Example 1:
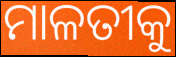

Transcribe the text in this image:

ମାଳତୀକୁ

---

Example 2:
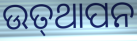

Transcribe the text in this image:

ଉତ୍‍ଥାପନ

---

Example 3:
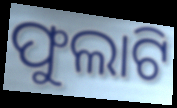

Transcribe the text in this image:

ଫୁଲାଟି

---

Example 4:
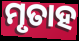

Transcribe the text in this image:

ମୃତାହ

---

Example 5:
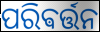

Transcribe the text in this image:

ପରିଵର୍ତ୍ତନ